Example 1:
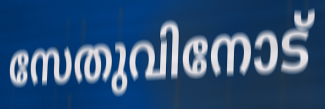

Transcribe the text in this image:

സേതുവിനോട്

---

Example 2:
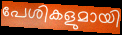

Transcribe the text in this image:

പേശികളുമായി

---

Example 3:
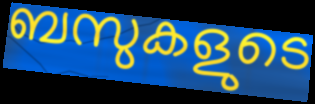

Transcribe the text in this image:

ബസുകളുടെ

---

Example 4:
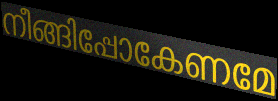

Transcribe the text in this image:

നീങ്ങിപ്പോകേണമേ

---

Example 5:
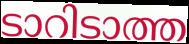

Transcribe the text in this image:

ടാറിടാത്ത